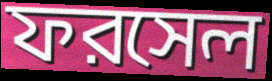
ফরসেল